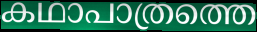
കഥാപാത്രത്തെ